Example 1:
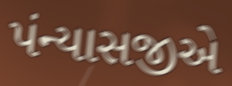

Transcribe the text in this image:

પંન્યાસજીએ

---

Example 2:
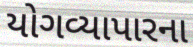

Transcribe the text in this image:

યોગવ્યાપારના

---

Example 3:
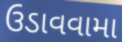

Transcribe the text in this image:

ઉડાવવામા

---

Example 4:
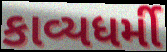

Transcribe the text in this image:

કાવ્યધર્મી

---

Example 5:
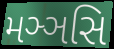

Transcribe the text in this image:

મઞ્ઞસિ